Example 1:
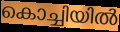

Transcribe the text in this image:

കൊച്ചിയിൽ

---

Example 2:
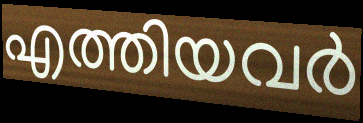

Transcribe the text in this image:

എത്തിയവർ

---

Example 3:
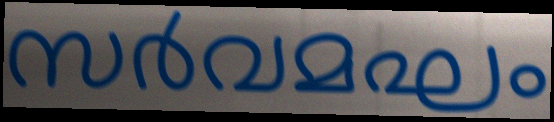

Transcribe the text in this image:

സർവമഘം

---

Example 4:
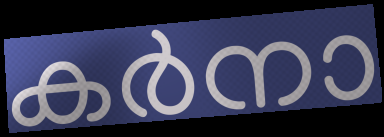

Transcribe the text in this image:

കർനാ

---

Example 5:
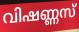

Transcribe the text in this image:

വിഷണ്ണസ്